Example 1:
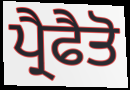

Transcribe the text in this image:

ਪ੍ਰੈਫੈਤੋ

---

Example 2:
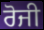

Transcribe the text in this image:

ਰੋਜੀ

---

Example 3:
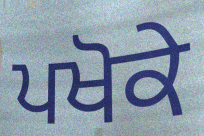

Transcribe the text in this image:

ਪਖੋਕੇ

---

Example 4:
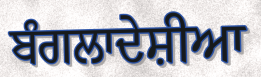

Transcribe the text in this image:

ਬੰਗਲਾਦੇਸ਼ੀਆ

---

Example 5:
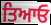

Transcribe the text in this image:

ਤਿਆਓ